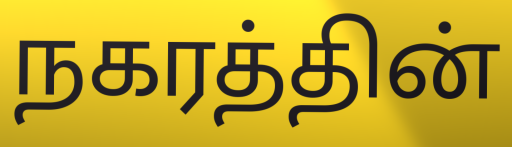
நகரத்தின்